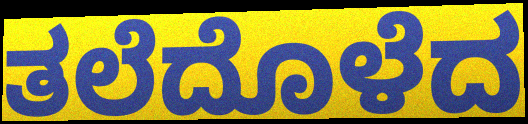
ತಲೆದೊಳೆದ